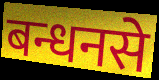
बन्धनसे